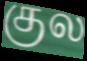
குல